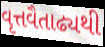
વૃત્તવૈતાઢ્યથી